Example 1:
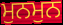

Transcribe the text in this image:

ਮੁਨਮੁਨ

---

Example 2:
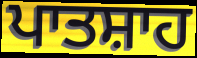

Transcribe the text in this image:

ਪਾਤਸ਼ਾਹ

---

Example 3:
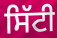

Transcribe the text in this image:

ਸਿੱਟੀ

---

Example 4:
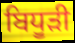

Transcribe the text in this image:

ਬਿਧੂੜੀ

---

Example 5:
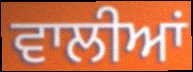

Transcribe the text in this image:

ਵਾਲੀਆਂ